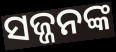
ସଜ୍ଜନଙ୍କ